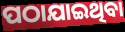
ପଠାଯାଇଥିବା